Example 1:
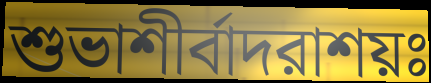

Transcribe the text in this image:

শুভাশীর্বাদরাশয়ঃ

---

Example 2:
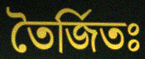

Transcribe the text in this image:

তৈর্জিতঃ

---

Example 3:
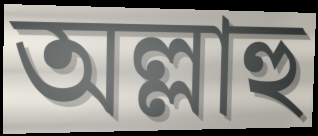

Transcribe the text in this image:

অল্লাহু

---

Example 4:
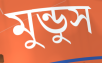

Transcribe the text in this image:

মুন্ডুস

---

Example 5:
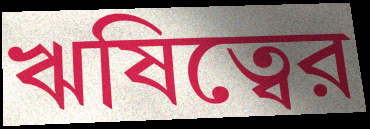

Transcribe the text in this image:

ঋষিত্বের